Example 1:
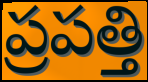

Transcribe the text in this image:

ప్రపత్తి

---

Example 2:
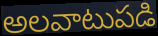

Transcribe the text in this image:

అలవాటుపడి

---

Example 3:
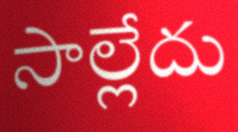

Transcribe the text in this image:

సాల్లేదు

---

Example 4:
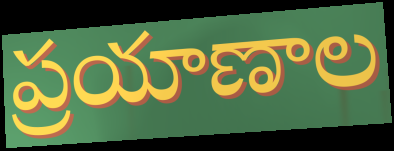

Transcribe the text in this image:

ప్రయాణాల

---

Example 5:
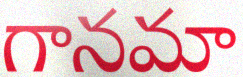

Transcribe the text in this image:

గానమా